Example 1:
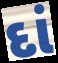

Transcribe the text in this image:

દાં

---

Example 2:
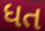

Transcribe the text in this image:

ધત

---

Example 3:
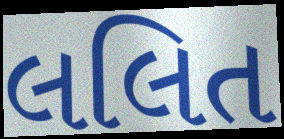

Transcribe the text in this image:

લલિત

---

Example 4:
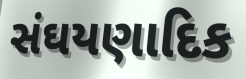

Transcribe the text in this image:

સંઘયણાદિક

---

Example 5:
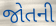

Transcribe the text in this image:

જોતની